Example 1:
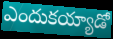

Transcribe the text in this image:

ఎందుకయ్యాడో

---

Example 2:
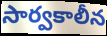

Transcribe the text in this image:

సార్వకాలీన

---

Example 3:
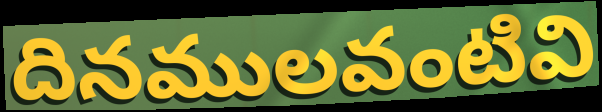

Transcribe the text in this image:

దినములవంటివి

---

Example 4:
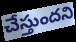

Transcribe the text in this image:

చేస్తుందని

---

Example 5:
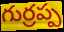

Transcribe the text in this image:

గుర్రప్ప